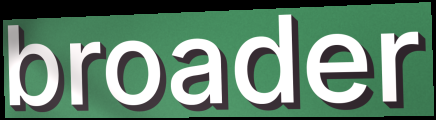
broader